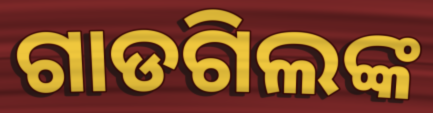
ଗାଡଗିଲଙ୍କ